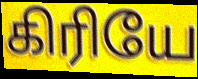
கிரியே